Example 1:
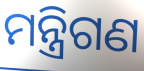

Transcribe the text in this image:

ମନ୍ତ୍ରିଗଣ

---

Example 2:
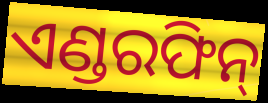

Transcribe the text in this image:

ଏଣ୍ଡରଫିନ୍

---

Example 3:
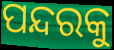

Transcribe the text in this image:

ପନ୍ଦରକୁ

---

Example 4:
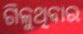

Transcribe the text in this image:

ଗିଳୁଥିବାର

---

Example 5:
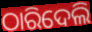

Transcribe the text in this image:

ଠାରିଦେଲି